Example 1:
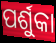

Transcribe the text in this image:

ପର୍ଶୁକା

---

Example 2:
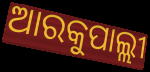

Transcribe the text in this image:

ଆରକୁପାଲ୍ଲୀ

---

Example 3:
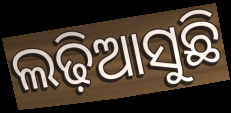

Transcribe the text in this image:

ଲଢ଼ିଆସୁଛି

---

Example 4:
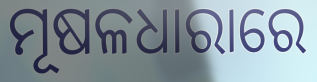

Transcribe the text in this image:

ମୂଷଳଧାରାରେ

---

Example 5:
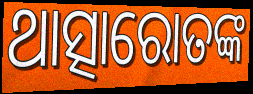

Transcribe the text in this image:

ଥାତ୍ସାରୋତଙ୍କ